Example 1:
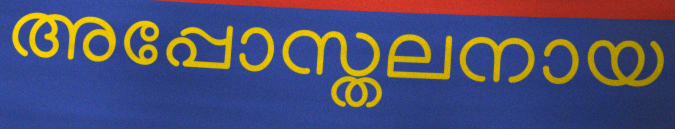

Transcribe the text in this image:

അപ്പോസ്തലനായ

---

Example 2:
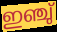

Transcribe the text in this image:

ഇഞ്ചു്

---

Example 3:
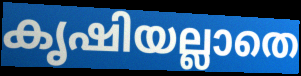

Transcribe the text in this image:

കൃഷിയല്ലാതെ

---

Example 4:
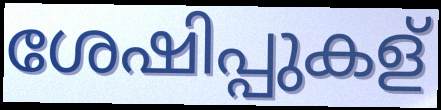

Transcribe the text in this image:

ശേഷിപ്പുകള്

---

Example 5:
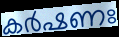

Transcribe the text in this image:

കർഷണഃ